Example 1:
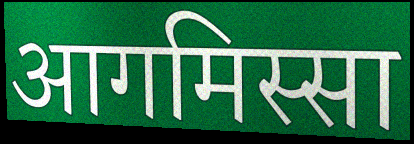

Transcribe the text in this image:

आगमिस्सा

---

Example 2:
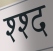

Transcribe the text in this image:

श्श्द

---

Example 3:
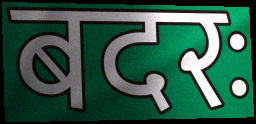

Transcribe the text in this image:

बदरः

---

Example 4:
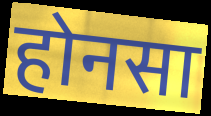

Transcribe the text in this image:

होनसा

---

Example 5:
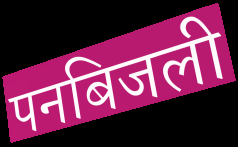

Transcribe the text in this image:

पनबिजली